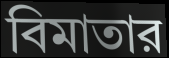
বিমাতার